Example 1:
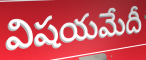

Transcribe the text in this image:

విషయమేదీ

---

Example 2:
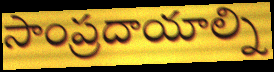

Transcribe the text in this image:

సాంప్రదాయాల్ని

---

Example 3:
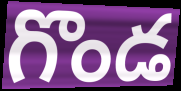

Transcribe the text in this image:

గొండ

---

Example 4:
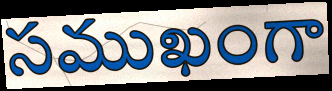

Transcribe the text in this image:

సముఖంగా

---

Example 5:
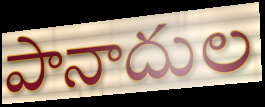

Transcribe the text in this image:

పానాదుల